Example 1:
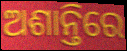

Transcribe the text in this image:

ଅଶାନ୍ତିରେ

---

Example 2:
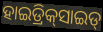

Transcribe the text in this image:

ହାଇଡ୍ରିକ୍‌ସାଇଡ୍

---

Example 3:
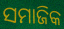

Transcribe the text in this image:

ସମାଜିକ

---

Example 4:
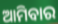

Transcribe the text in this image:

ଆମିବାର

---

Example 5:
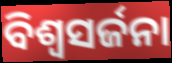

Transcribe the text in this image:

ବିଶ୍ଵସର୍ଜନା